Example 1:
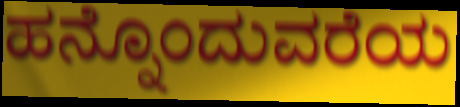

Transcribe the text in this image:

ಹನ್ನೊಂದುವರೆಯ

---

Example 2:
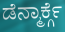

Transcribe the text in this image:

ಡೆನ್ಮಾರ್ಕ್ಗೆ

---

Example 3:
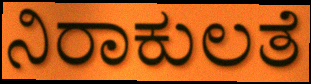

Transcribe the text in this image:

ನಿರಾಕುಲತೆ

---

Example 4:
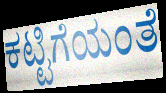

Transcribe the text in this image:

ಕಟ್ಟಿಗೆಯಂತೆ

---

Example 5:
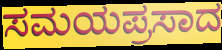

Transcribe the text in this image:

ಸಮಯಪ್ರಸಾದ